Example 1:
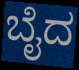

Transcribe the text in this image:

ಬೈದ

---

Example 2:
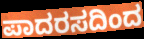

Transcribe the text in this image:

ಪಾದರಸದಿಂದ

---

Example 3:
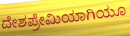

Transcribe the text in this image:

ದೇಶಪ್ರೇಮಿಯಾಗಿಯೂ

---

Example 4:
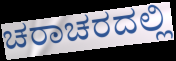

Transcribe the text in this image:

ಚರಾಚರದಲ್ಲಿ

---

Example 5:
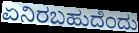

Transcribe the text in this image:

ಏನಿರಬಹುದೆಂದು